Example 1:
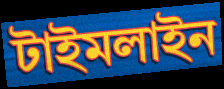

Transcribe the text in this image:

টাইমলাইন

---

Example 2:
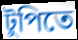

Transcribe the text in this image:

টুপিতে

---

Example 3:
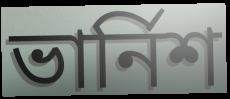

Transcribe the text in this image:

ভার্নিশ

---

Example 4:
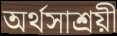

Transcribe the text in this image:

অর্থসাশ্রয়ী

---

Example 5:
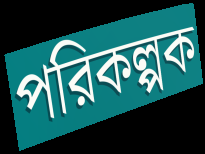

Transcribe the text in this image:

পরিকল্পক